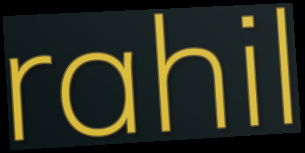
rahil